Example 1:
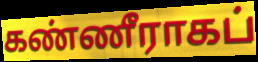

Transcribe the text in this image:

கண்ணீராகப்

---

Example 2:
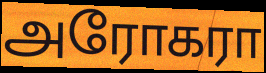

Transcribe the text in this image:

அரோகரா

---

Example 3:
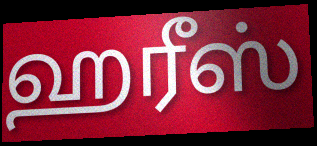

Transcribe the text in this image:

ஹரீஸ்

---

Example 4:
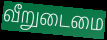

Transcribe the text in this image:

வீறுடைமை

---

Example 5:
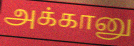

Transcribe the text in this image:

அக்கானு